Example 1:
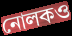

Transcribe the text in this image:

নোলকও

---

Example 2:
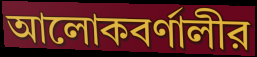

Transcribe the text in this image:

আলোকবর্ণালীর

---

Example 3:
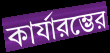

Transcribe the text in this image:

কার্যারম্ভের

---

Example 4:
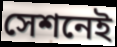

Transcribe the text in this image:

সেশনেই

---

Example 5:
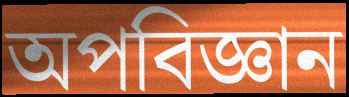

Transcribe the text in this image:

অপবিজ্ঞান